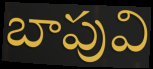
బాపువి